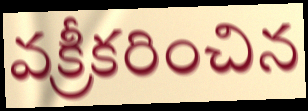
వక్రీకరించిన